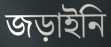
জড়াইনি